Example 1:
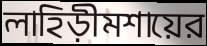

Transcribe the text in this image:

লাহিড়ীমশায়ের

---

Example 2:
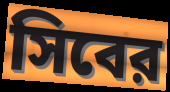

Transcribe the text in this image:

সিবের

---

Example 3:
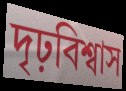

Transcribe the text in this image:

দৃঢ়বিশ্বাস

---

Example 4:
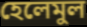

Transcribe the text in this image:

হেলেমুল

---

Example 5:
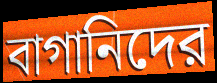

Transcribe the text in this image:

বাগানিদের